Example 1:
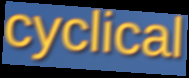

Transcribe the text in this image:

cyclical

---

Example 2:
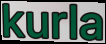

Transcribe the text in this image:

kurla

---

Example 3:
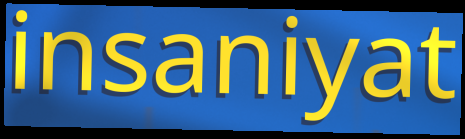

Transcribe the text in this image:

insaniyat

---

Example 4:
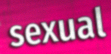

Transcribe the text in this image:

sexual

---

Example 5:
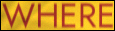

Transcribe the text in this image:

WHERE